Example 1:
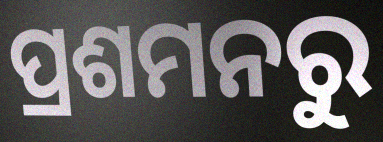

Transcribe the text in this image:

ପ୍ରଶମନରୁ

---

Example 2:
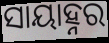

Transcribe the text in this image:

ସାୟାହ୍ନର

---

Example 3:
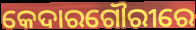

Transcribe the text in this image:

କେଦାରଗୌରୀରେ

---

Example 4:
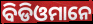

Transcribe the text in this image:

ବିଡିଓମାନେ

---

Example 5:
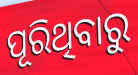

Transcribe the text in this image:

ପୂରିଥିବାରୁ